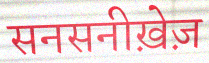
सनसनीख़ेज़